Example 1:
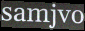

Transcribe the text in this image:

samjvo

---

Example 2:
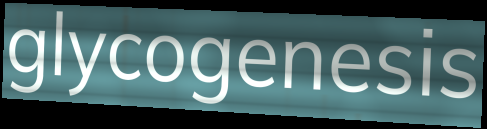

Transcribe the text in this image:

glycogenesis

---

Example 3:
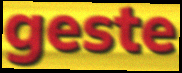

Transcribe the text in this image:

geste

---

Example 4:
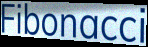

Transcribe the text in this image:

Fibonacci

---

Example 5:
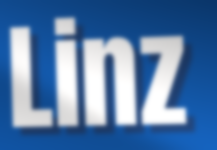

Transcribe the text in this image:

Linz